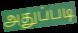
அதுப்படி